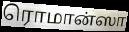
ரொமான்ஸா